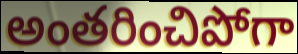
అంతరించిపోగా